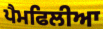
ਪੈਮਫਿਲੀਆ